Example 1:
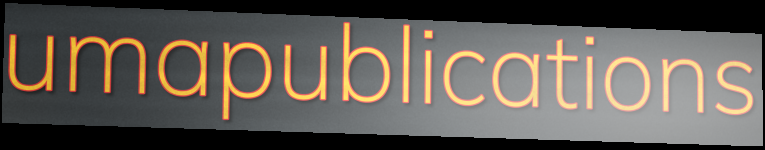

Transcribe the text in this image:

umapublications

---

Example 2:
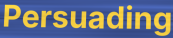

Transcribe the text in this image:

Persuading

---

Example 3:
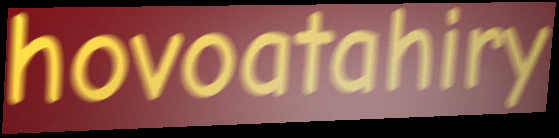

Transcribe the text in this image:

hovoatahiry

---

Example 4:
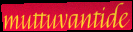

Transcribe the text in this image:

muttuvantide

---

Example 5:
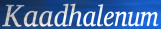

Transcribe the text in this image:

Kaadhalenum